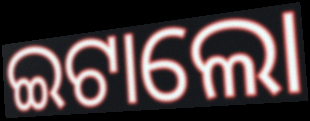
ଇଟାଲୋ